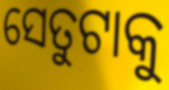
ସେତୁଟାକୁ